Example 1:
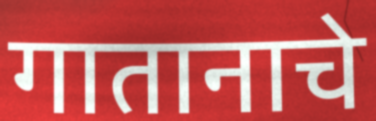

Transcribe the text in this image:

गातानाचे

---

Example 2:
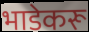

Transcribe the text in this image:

भाडेकरू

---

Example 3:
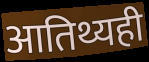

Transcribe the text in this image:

आतिथ्यही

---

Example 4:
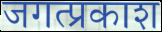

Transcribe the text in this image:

जगत्प्रकाश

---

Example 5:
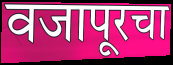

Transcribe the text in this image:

वजापूरचा